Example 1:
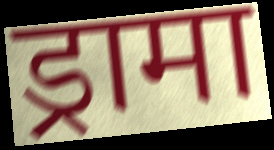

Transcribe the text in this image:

ड्रामा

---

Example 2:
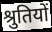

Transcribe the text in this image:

श्रुतियों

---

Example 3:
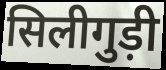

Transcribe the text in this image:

सिलीगुड़ी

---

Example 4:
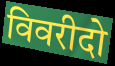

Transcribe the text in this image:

विवरीदो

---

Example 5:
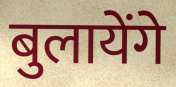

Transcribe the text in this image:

बुलायेंगे